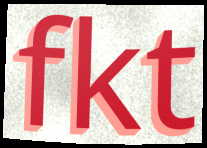
fkt